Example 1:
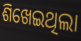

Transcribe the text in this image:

ଶିଖେଇଥିଲା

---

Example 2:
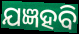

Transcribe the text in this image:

ଯଜ୍ଞହବି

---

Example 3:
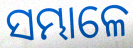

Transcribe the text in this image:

ସମ୍ଭାଳେ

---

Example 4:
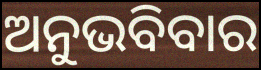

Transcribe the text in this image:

ଅନୁଭବିବାର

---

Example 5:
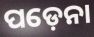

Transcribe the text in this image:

ପଡ଼େନା